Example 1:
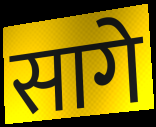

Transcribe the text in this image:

सागे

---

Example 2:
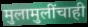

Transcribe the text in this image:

मुलामुलींचाही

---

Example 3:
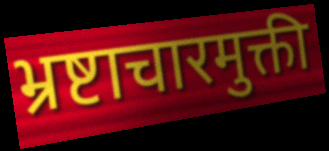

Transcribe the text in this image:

भ्रष्टाचारमुक्ती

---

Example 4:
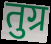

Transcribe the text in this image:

तुग्र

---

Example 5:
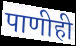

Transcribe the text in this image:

पाणीही